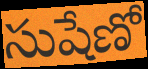
సుషేణో